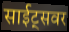
साईट्सवर